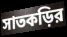
সাতকড়ির